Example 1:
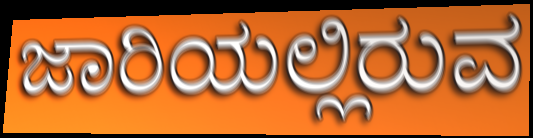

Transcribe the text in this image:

ಜಾರಿಯಲ್ಲಿರುವ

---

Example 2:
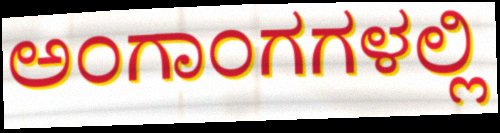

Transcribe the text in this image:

ಅಂಗಾಂಗಗಳಲ್ಲಿ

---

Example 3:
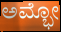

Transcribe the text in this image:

ಅಮ್ಭೋ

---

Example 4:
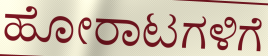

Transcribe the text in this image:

ಹೋರಾಟಗಳಿಗೆ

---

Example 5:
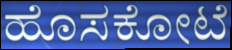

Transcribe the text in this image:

ಹೊಸಕೋಟೆ